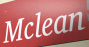
Mclean